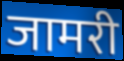
जामरी